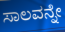
ಸಾಲವನ್ನೇ